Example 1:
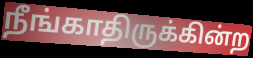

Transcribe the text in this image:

நீங்காதிருக்கின்ற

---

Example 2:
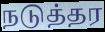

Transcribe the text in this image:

நடுத்தர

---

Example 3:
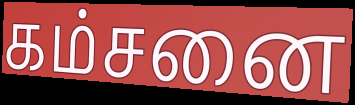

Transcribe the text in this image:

கம்சனை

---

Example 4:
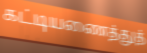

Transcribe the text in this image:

கட்டியணைத்துத்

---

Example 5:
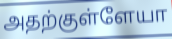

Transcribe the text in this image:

அதற்குள்ளேயா